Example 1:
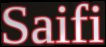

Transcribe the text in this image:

Saifi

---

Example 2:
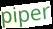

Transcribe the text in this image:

piper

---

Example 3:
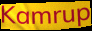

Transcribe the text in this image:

Kamrup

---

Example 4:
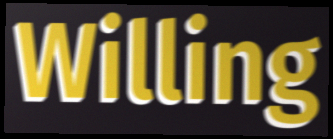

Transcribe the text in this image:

Willing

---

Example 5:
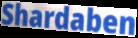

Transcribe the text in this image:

Shardaben